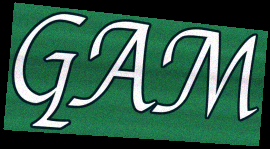
GAM